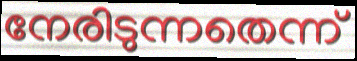
നേരിടുന്നതെന്ന്